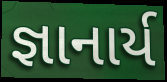
જ્ઞાનાર્ય